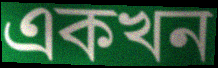
একখন